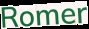
Romer